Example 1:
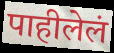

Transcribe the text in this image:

पाहीलेलं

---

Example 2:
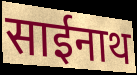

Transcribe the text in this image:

साईनाथ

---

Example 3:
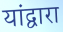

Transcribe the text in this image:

यांद्वारा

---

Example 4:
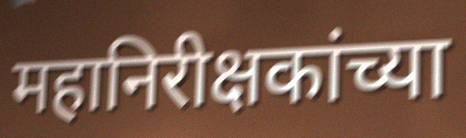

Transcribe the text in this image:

महानिरीक्षकांच्या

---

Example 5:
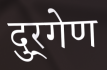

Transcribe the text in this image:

दुर्गेण